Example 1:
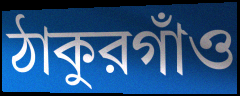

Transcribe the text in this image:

ঠাকুরগাঁও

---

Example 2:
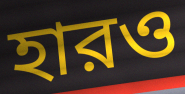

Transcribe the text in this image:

হারও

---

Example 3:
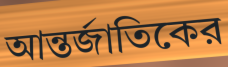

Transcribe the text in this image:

আন্তর্জাতিকের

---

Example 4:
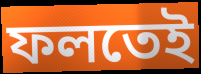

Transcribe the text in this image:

ফলতেই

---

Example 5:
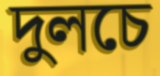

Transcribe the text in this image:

দুলচে